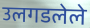
उलगडलेले